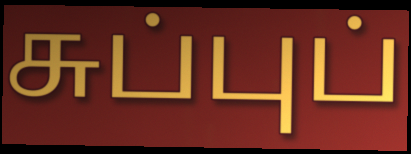
சுப்புப்